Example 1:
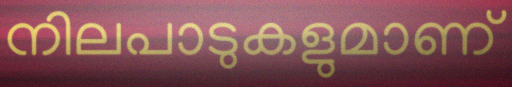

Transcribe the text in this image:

നിലപാടുകളുമാണ്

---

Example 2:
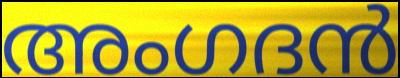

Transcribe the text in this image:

അംഗദൻ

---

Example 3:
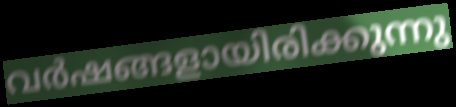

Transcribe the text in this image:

വർഷങ്ങളായിരിക്കുന്നു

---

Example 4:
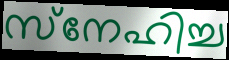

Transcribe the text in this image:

സ്‌നേഹിച്ച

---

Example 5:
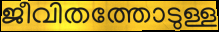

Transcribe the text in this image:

ജീവിതത്തോടുള്ള